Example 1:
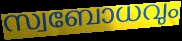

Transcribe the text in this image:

സ്വബോധവും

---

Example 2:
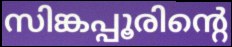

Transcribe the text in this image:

സിങ്കപ്പൂരിന്റെ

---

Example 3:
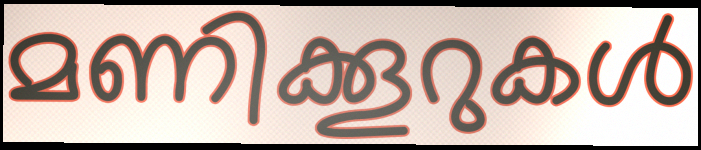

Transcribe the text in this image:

മണിക്കൂറുകൾ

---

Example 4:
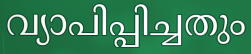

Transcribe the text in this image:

വ്യാപിപ്പിച്ചതും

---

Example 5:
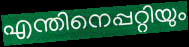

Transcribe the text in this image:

എന്തിനെപ്പറ്റിയും